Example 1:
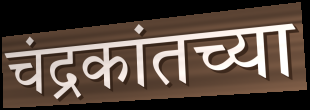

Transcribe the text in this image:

चंद्रकांतच्या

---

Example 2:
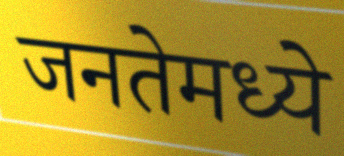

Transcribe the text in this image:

जनतेमध्ये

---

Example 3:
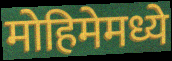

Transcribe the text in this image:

मोहिमेमध्ये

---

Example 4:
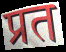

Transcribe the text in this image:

प्रत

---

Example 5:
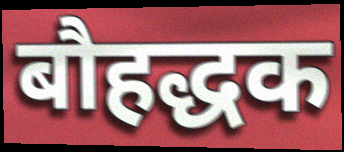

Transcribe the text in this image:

बौहद्धक